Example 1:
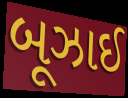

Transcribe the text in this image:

બૂઝાઈ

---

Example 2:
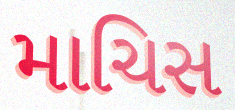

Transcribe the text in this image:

માચિસ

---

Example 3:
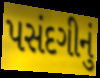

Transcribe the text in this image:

પસંદગીનું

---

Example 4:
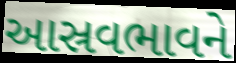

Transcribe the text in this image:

આસ્રવભાવને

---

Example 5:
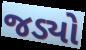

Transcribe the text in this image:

જડ્યો